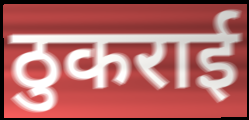
ठुकराई